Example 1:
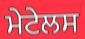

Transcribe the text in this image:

ਮੇਟੇਲਸ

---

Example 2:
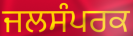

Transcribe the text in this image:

ਜਲਸੰਪਰਕ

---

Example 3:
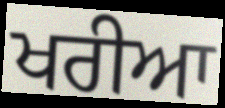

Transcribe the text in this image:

ਖਰੀਆ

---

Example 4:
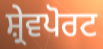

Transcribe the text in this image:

ਸ਼੍ਰੇਵਪੋਰਟ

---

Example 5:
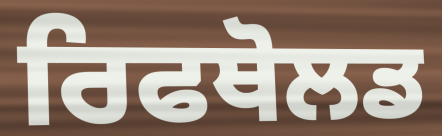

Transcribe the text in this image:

ਰਿਫਥੋਲਡ